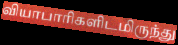
வியாபாரிகளிடமிருந்து